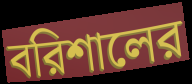
বরিশালের